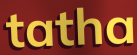
tatha